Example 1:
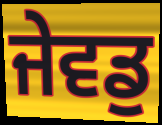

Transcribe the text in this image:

ਜੇਵਡੁ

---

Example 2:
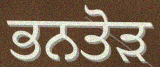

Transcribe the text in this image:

ਭਨਤੋੜ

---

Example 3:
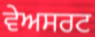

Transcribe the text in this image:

ਵੇਅਸਰਟ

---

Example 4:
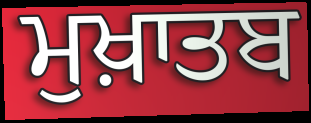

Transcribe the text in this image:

ਮੁਖ਼ਾਤਬ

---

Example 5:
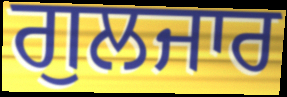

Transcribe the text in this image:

ਗੁਲਜਾਰ